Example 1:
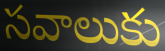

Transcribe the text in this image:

సవాలుకు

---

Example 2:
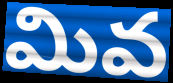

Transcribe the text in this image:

మివ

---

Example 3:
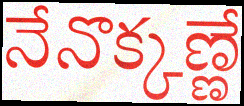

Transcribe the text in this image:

నేనొక్కణ్ణే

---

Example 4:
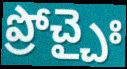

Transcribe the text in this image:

ప్రోచ్చైః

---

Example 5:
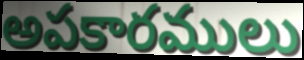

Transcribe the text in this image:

అపకారములు